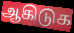
ஆகிடுக